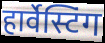
हार्वेस्टिंग